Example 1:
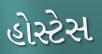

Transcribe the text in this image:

હોસ્ટેસ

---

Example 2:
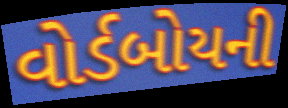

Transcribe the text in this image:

વોર્ડબોયની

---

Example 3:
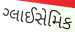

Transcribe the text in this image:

ગ્લાઈસેમિક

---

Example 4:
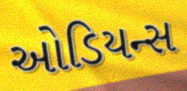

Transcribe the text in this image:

ઓડિયન્સ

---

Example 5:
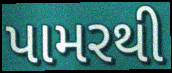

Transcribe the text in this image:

પામરથી